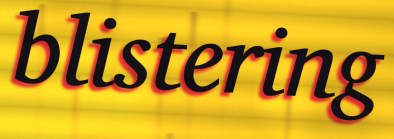
blistering